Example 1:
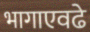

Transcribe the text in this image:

भागाएवढे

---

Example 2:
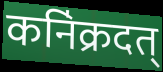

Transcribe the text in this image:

कनि॑क्रदत्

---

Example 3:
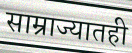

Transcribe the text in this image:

साम्राज्यातही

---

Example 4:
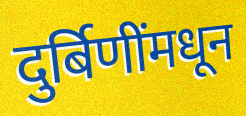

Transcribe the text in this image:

दुर्बिणींमधून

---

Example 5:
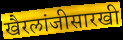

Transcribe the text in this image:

खैरलांजीसारखी